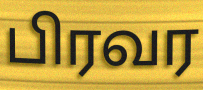
பிரவர